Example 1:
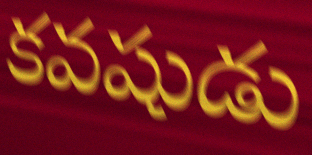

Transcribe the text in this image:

కవషుడు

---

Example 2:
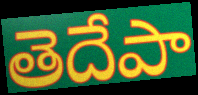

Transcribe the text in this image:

తెదేపా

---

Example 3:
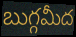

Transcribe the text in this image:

బుగ్గమీద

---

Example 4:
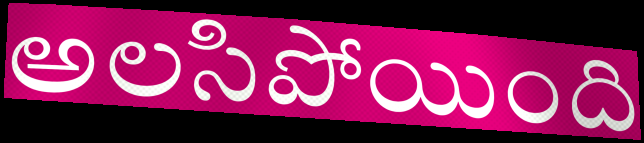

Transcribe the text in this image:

అలసిపోయింది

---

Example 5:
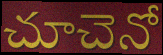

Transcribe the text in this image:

చూచెనో